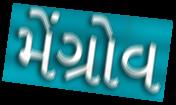
મેંગ્રોવ